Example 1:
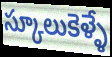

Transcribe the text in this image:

స్కూలుకెళ్ళే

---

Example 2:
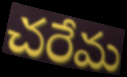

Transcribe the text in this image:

చరేమ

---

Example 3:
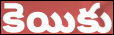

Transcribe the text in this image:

కెయికు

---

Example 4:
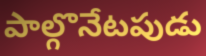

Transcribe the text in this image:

పాల్గొనేటపుడు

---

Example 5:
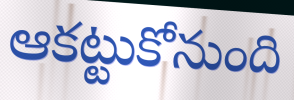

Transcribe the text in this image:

ఆకట్టుకోనుంది